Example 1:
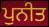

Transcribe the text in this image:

ਪੁਨੀਤ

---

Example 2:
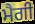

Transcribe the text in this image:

ਮੈਗੀ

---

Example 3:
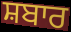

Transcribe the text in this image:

ਸ਼ਬਾਰ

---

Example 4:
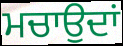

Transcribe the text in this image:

ਮਚਾਉਦਾਂ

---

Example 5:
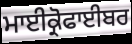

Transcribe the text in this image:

ਮਾਈਕ੍ਰੋਫਾਈਬਰ